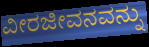
ವೀರಜೀವನವನ್ನು